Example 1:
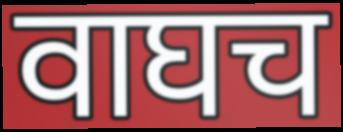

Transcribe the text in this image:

वाघच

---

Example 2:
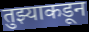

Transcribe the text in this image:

तुझ्याकडून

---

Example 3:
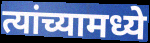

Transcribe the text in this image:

त्यांच्यामध्ये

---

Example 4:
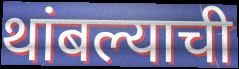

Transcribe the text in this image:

थांबल्याची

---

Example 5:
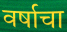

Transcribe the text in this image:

वर्षाचा